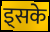
इ्सके